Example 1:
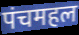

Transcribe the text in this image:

पंचमहल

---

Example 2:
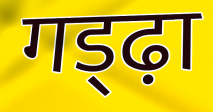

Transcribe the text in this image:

गड्ढ़ा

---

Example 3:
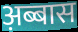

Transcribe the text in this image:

अ़ब्बास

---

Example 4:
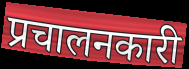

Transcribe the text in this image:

प्रचालनकारी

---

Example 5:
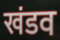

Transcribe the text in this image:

खंडव